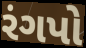
રંગપો